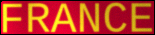
FRANCE